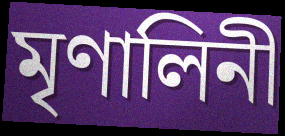
মৃণালিনী